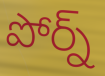
పోర్న్